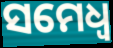
ସମେଧ୍ୱ